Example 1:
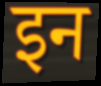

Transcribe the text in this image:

इन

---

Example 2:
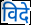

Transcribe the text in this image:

विदे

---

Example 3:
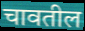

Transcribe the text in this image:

चावतील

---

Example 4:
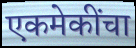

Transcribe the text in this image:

एकमेकींचा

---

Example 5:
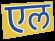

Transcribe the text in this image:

एल